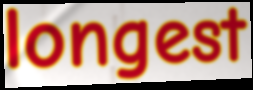
longest